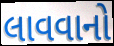
લાવવાનો